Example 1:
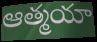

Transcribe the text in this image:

ఆత్మయా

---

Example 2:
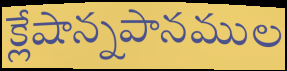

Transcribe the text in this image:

క్లేషాన్నపానముల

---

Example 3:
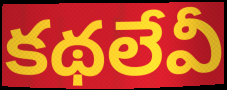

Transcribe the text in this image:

కథలేవీ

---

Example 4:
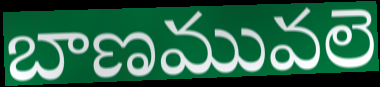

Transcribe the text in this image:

బాణమువలె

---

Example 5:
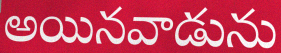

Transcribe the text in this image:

అయినవాడును